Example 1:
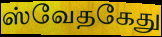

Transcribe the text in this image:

ஸ்வேதகேது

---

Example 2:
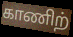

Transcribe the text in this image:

காணிற்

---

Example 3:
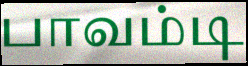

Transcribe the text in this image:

பாவம்டி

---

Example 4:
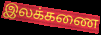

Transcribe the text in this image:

இலக்கணை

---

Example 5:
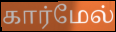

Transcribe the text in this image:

கார்மேல்